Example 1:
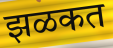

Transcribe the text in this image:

झळकत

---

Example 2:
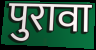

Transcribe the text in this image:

पुरावा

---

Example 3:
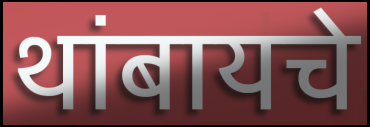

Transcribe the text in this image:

थांबायचे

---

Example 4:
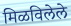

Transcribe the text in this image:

मिळविलेले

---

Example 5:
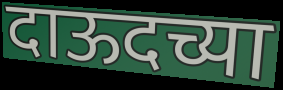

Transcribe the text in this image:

दाऊदच्या